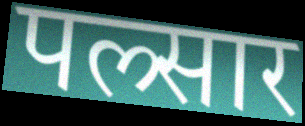
पल्सार